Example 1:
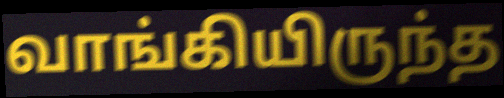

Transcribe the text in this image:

வாங்கியிருந்த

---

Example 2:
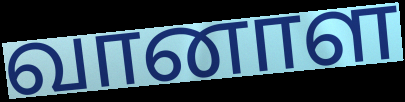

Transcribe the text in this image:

வானாள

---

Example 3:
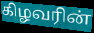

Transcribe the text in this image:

கிழவரின்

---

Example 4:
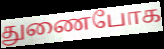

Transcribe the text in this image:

துணைபோக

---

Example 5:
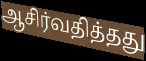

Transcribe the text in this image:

ஆசிர்வதித்தது